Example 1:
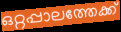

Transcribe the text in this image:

ഒറ്റപ്പാലത്തേക്ക്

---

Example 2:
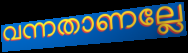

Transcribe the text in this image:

വന്നതാണല്ലേ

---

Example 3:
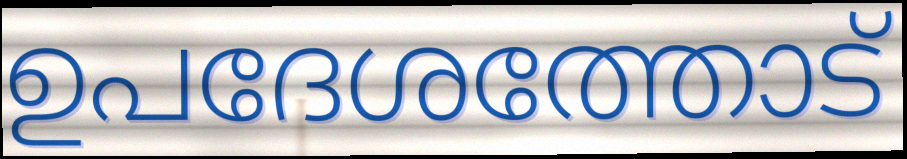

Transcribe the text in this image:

ഉപദേശത്തോട്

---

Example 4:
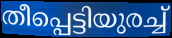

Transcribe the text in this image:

തീപ്പെട്ടിയുരച്ച്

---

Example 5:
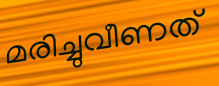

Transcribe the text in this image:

മരിച്ചുവീണത്